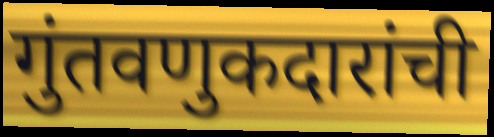
गुंतवणुकदारांची